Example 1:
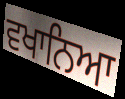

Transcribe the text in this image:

ਵਖਾਨਿਆ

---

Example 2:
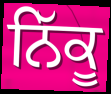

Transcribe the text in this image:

ਨਿੱਕੂ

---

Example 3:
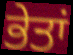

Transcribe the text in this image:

ਭੇਤਾਂ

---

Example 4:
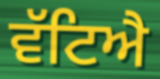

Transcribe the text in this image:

ਵੱਟਿਐ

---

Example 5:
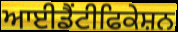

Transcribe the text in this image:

ਆਈਡੈਂਟੀਫਿਕੇਸ਼ਨ